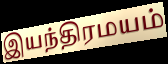
இயந்திரமயம்